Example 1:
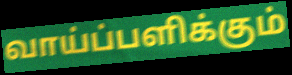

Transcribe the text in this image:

வாய்ப்பளிக்கும்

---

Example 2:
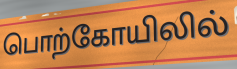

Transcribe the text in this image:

பொற்கோயிலில்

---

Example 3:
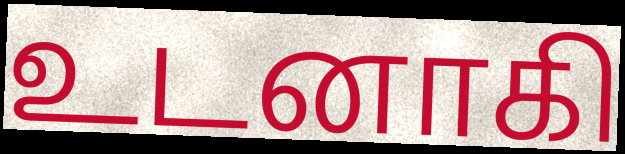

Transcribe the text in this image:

உடனாகி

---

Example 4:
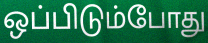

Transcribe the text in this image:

ஒப்பிடும்போது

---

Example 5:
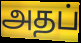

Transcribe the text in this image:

அதப்